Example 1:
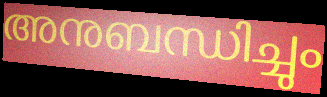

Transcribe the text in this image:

അനുബന്ധിച്ചും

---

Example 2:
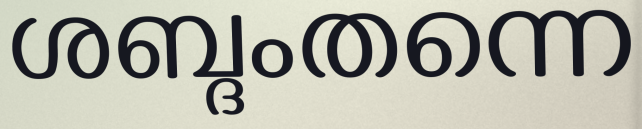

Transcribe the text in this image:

ശബ്ദംതന്നെ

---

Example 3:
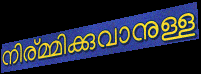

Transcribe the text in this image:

നിര്മ്മിക്കുവാനുള്ള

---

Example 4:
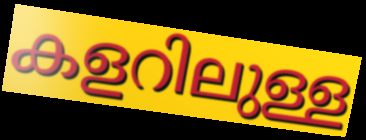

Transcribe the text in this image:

കളറിലുള്ള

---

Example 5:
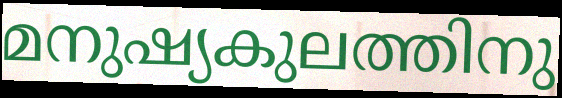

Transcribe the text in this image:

മനുഷ്യകുലത്തിനു